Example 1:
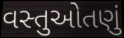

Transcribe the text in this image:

વસ્તુઓતણું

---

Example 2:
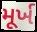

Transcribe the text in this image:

મૂર્ખ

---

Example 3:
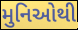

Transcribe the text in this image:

મુનિઓથી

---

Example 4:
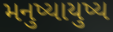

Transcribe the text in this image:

મનુષ્યાયુષ્ય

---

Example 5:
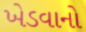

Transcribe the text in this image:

ખેડવાનો